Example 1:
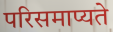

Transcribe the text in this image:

परिसमाप्यते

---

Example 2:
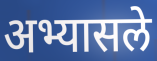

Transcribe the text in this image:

अभ्यासले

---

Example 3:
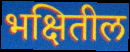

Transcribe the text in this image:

भक्षितील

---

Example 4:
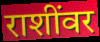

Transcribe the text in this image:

राशींवर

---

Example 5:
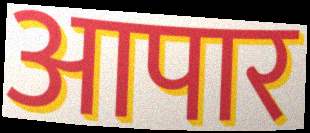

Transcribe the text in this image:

आपार